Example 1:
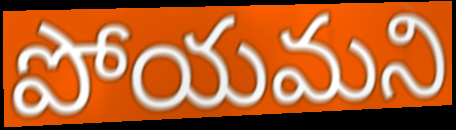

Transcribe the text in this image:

పోయమని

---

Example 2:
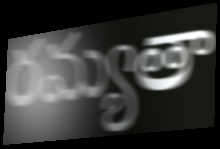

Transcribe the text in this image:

రమ్యతా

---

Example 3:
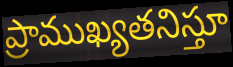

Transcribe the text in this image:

ప్రాముఖ్యతనిస్తూ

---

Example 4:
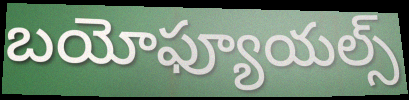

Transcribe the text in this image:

బయోఫ్యూయల్స్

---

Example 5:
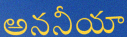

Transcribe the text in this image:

అననీయా